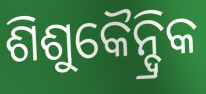
ଶିଶୁକୈନ୍ଦ୍ରିକ